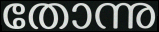
തോന്നു